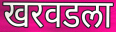
खरवडला